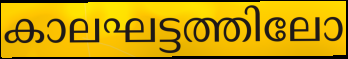
കാലഘട്ടത്തിലോ